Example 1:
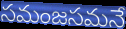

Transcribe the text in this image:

సమంజసమనే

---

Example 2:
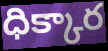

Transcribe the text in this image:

ధిక్కార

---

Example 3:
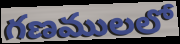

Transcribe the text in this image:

గణములలో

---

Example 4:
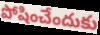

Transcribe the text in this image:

పోషించేందుకు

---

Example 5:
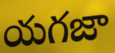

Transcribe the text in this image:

యగజా